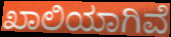
ಖಾಲಿಯಾಗಿವೆ